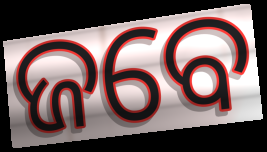
ଜବେ